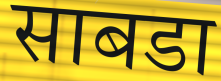
साबडा